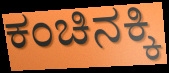
ಕಂಚಿನಕ್ಕಿ